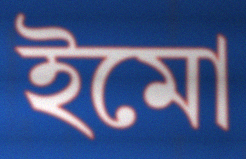
ইমো